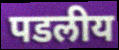
पडलीय